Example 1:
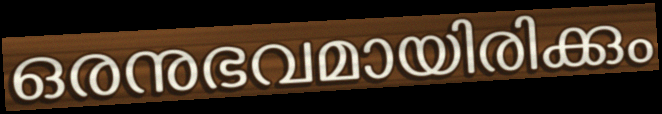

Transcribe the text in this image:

ഒരനുഭവമായിരിക്കും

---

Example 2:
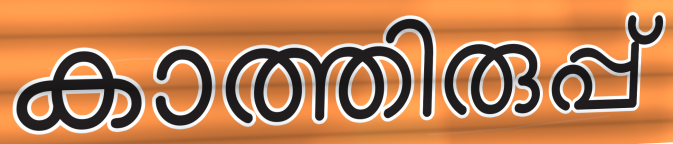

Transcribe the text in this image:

കാത്തിരുപ്പ്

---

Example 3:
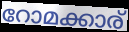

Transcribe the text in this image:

റോമക്കാര്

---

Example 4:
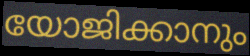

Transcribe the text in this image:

യോജിക്കാനും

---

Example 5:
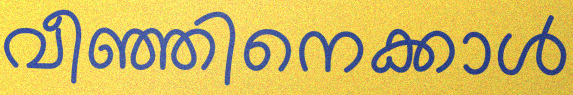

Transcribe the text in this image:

വീഞ്ഞിനെക്കാൾ